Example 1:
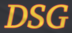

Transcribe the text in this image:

DSG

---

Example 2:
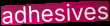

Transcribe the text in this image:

adhesives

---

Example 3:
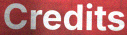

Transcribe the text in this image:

Credits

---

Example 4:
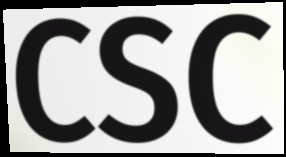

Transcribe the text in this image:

CSC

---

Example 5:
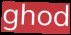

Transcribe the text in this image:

ghod